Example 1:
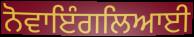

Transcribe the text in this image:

ਨੋਵਾਇੰਗਲਿਆਈ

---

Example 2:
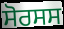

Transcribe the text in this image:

ਸੋਰਸਸ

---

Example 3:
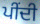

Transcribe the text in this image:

ਪੀਂਦੀ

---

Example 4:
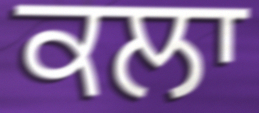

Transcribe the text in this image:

ਕਲਾ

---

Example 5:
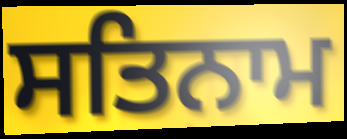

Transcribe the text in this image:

ਸਤਿਨਾਮ